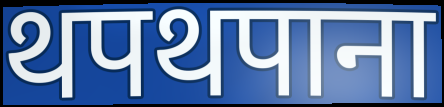
थपथपाना